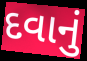
દવાનું